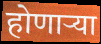
होणाऱ्या